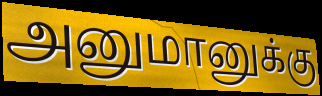
அனுமானுக்கு